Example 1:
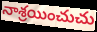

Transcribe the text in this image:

నాశ్రయించుచు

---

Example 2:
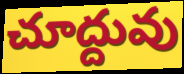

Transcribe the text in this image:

చూద్దువు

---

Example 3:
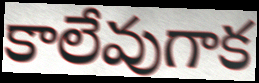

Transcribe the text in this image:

కాలేవుగాక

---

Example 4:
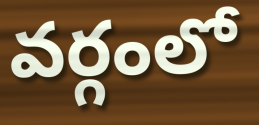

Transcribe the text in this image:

వర్గంలో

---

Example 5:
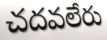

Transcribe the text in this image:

చదవలేరు